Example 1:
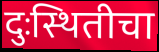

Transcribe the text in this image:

दुःस्थितीचा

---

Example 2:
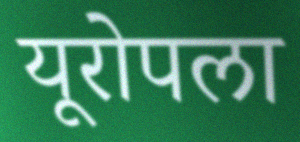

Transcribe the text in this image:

यूरोपला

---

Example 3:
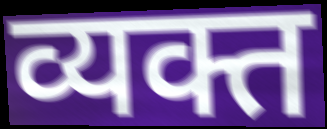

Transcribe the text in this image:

व्यक्त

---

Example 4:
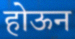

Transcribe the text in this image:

होऊन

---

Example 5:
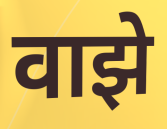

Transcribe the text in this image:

वाझे